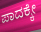
ಪಾದಕ್ಕೇ